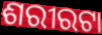
ଶରୀରଟା